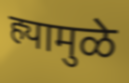
ह्यामुळे